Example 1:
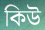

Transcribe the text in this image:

কিউ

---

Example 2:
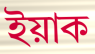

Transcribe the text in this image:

ইয়াক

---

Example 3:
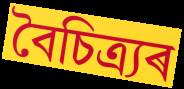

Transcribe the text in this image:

বৈচিত্ৰ্যৰ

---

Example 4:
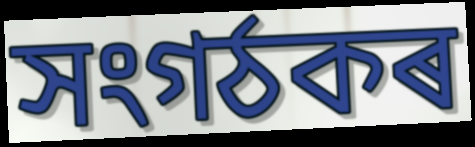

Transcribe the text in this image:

সংগঠকৰ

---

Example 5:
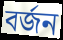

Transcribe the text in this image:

বৰ্জন